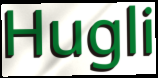
Hugli